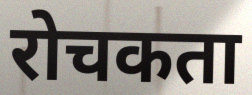
रोचकता